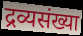
द्रव्यसंख्या